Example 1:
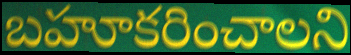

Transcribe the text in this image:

బహూకరించాలని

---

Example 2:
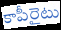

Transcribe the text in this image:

కాపీరైటు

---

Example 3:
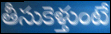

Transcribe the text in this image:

తీసుకెళ్తుంటే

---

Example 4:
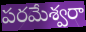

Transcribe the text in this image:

పరమేశ్వరా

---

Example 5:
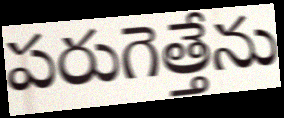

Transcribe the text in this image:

పరుగెత్తేను